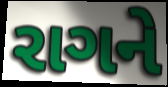
રાગને